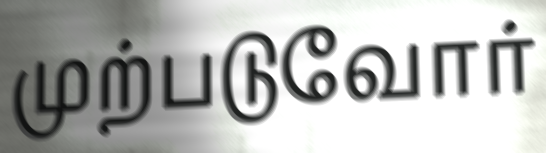
முற்படுவோர்